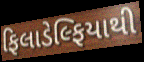
ફિલાડેલ્ફિયાથી